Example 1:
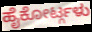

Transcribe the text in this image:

ಹೈಕೋರ್ಟ್ಗಳು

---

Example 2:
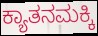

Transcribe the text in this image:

ಕ್ಯಾತನಮಕ್ಕಿ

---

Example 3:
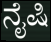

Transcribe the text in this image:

ನೈಷಿ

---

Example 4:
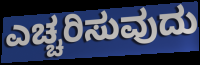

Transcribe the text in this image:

ಎಚ್ಚರಿಸುವುದು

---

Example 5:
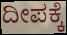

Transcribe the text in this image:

ದೀಪಕ್ಕೆ